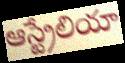
ఆస్ట్రేలియా